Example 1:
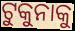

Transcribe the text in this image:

ଟୁକୁନାକୁ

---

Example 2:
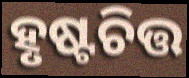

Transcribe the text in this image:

ହୃଷ୍ଟଚିତ୍ତ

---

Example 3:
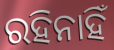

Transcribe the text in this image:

ରହିନାହିଁ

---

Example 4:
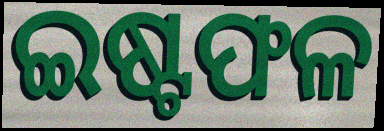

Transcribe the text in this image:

ଇଷ୍ଟଫଳ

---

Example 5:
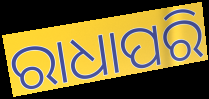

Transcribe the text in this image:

ରାଧାପରି